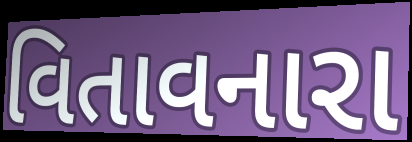
વિતાવનારા